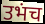
उभंच